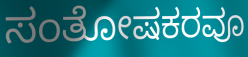
ಸಂತೋಷಕರವೂ